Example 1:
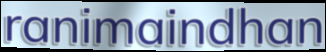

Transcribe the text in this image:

ranimaindhan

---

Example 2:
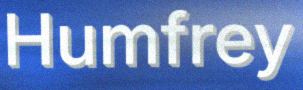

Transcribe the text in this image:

Humfrey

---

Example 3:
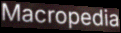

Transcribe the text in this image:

Macropedia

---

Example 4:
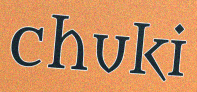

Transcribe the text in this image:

chuki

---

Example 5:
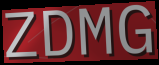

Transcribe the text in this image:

ZDMG